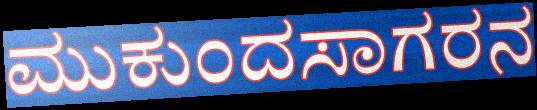
ಮುಕುಂದಸಾಗರನ